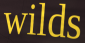
wilds